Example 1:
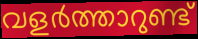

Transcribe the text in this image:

വളർത്താറുണ്ട്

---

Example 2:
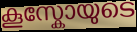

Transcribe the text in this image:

കൂസ്കോയുടെ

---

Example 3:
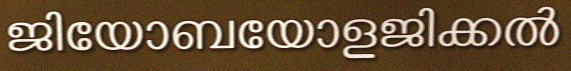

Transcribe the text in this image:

ജിയോബയോളജിക്കൽ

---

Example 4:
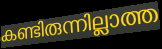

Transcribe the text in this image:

കണ്ടിരുന്നില്ലാത്ത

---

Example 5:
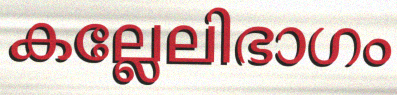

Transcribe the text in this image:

കല്ലേലിഭാഗം